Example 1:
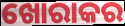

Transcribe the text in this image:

ଖୋରାକର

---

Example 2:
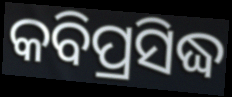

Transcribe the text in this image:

କବିପ୍ରସିଦ୍ଧ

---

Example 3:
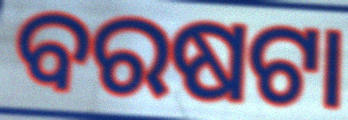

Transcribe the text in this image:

ବରଷଟା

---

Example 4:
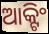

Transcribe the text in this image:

ଆକ୍ଟିଂ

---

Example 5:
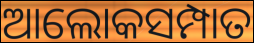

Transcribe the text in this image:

ଆଲୋକସମ୍ପାତ